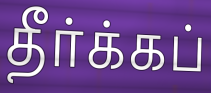
தீர்க்கப்